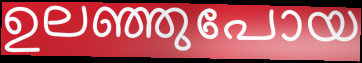
ഉലഞ്ഞുപോയ